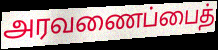
அரவணைப்பைத்